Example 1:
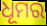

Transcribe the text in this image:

ଧୂମର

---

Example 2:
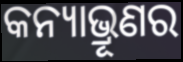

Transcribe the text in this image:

କନ୍ୟାଭ୍ରୂଣର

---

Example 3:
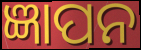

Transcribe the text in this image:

ଜ୍ଞାପନ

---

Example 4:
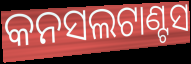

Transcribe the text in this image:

କନସଲଟାଣ୍ଟସ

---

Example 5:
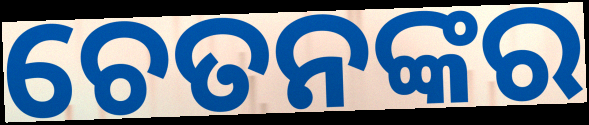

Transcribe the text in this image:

ଚେତନଙ୍କର